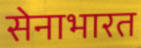
सेनाभारत